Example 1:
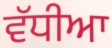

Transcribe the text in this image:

ਵੱਧੀਆ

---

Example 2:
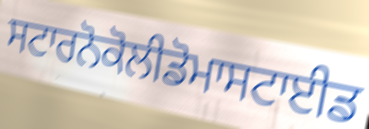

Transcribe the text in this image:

ਸਟਾਰਨੋਕੋਲੀਡੋਮਾਸਟਾਈਡ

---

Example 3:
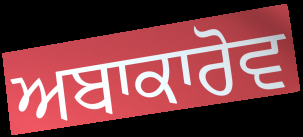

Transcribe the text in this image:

ਅਬਾਕਾਰੋਵ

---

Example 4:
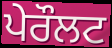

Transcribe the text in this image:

ਪੇਰੌਲਟ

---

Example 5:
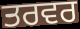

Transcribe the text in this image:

ਤਰਵਰ